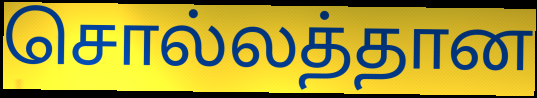
சொல்லத்தான